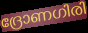
ദ്രോണഗിരി